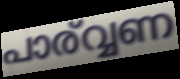
പാര്വ്വണ